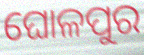
ଘୋଳପୁର